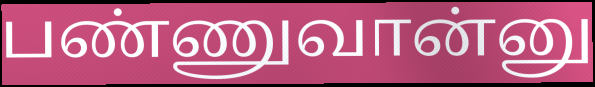
பண்ணுவான்னு